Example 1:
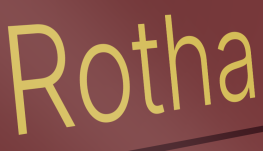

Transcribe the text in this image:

Rotha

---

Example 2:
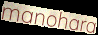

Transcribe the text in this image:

manohara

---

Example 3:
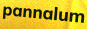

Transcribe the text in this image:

pannalum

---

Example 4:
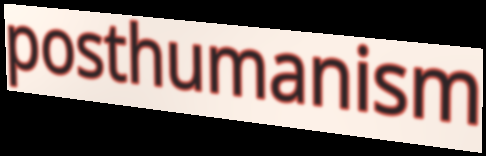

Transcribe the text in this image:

posthumanism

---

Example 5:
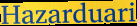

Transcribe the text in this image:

Hazarduari